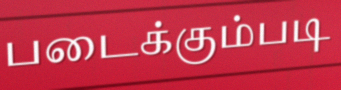
படைக்கும்படி